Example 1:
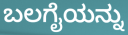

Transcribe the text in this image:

ಬಲಗೈಯನ್ನು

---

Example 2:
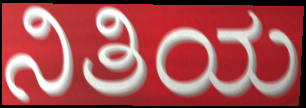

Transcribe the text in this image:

ನಿತಿಯ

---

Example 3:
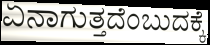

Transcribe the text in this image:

ಏನಾಗುತ್ತದೆಂಬುದಕ್ಕೆ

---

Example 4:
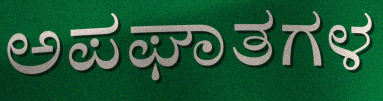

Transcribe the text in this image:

ಅಪಘಾತಗಳ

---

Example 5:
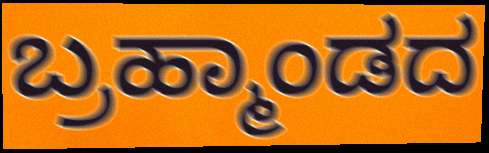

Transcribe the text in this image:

ಬ್ರಹ್ಮಾಂಡದ